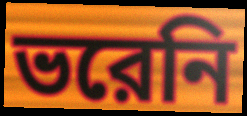
ভরেনি